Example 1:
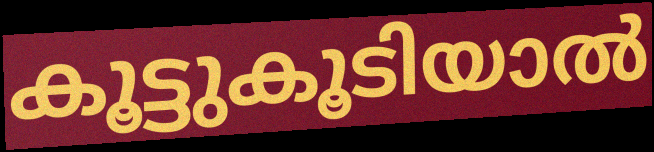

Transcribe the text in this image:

കൂട്ടുകൂടിയാൽ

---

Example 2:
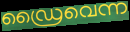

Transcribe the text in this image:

ഡ്രൈവെന്ന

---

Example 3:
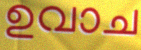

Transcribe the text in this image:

ഉവാച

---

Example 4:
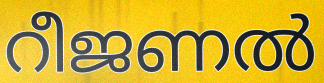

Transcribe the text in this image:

റീജണൽ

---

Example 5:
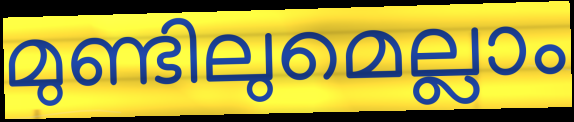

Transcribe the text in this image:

മുണ്ടിലുമെല്ലാം